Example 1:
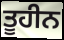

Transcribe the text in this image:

ਤੂਹੀਨ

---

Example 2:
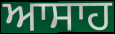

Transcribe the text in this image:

ਆਸਾਹ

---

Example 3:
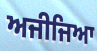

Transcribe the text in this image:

ਅਜੀਜਿਆ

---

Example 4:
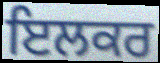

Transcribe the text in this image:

ਇਲਕਰ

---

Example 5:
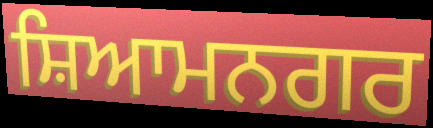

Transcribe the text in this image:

ਸ਼ਿਆਮਨਗਰ